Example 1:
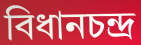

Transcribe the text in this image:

বিধানচন্দ্র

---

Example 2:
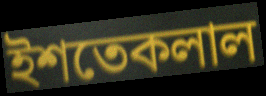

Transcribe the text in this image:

ইশতেকলাল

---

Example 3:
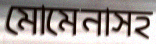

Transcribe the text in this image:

মোমেনাসহ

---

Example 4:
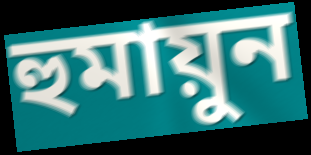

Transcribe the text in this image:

হুমায়ুন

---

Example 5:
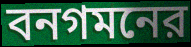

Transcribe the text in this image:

বনগমনের